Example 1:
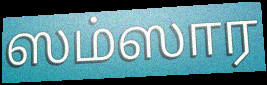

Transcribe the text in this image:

ஸம்ஸார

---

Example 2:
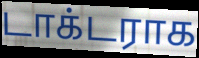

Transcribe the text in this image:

டாக்டராக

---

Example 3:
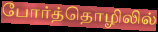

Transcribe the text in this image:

போர்த்தொழிலில்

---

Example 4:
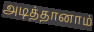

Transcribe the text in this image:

அடித்தானாம்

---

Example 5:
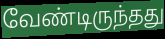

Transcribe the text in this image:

வேண்டிருந்தது